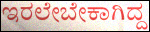
ಇರಲೇಬೇಕಾಗಿದ್ದ